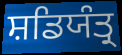
ਸ਼ਡਿਯੰਤ੍ਰ